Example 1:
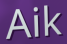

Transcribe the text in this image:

Aik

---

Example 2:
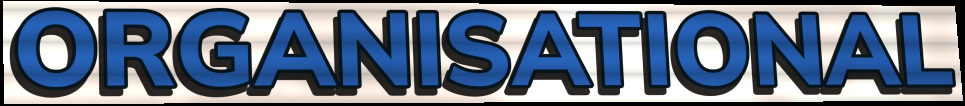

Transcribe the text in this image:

ORGANISATIONAL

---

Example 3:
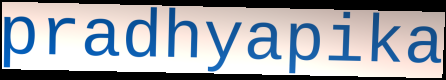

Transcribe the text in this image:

pradhyapika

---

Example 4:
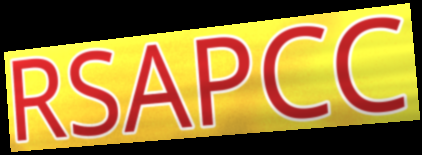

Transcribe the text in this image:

RSAPCC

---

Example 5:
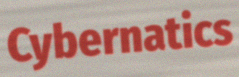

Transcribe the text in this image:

Cybernatics